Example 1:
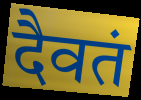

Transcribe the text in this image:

दैवतं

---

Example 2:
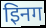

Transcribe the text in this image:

इिनग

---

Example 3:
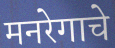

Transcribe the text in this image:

मनरेगाचे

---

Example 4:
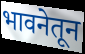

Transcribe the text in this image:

भावनेतून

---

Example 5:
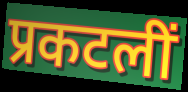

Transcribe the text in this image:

प्रकटलीं